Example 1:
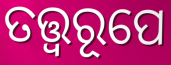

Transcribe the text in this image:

ତତ୍ତ୍ୱରୂପେ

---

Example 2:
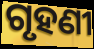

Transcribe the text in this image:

ଗୃହଣୀ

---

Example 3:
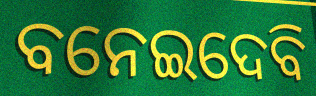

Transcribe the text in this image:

ବନେଇଦେବି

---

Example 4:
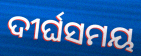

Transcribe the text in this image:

ଦୀର୍ଘସମୟ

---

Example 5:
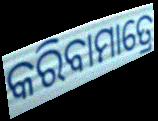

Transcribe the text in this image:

କରିବାମାତ୍ରେ